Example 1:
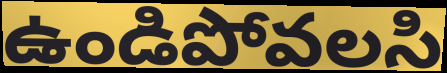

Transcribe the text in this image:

ఉండిపోవలసి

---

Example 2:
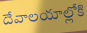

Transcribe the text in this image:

దేవాలయాల్లోకి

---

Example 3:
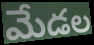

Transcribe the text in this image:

మేడల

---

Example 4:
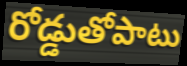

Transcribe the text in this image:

రోడ్డుతోపాటు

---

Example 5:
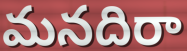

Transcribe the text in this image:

మనదిరా